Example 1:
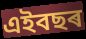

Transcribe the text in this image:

এইবছৰ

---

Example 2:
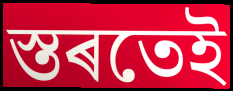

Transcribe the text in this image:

স্তৰতেই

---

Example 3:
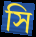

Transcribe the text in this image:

সি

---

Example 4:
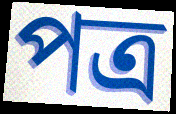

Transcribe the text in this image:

পত্ৰ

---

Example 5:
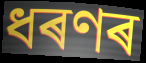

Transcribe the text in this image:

ধৰণৰ